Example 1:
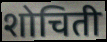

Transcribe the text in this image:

शोचिती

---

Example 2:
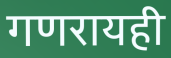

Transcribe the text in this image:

गणरायही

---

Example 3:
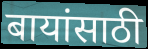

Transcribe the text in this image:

बायांसाठी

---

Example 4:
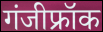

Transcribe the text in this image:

गंजीफ्रॉक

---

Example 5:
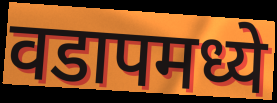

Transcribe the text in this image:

वडापमध्ये